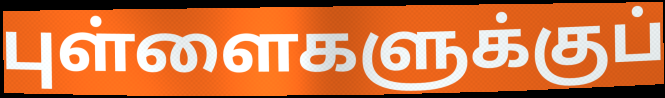
புள்ளைகளுக்குப்